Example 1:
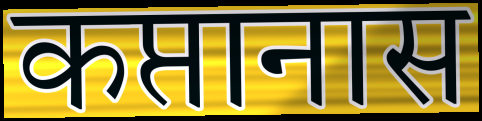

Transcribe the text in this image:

कप्तानास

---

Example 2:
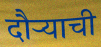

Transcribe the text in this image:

दौर्‍याची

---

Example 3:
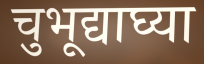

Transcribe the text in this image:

चुभूद्याघ्या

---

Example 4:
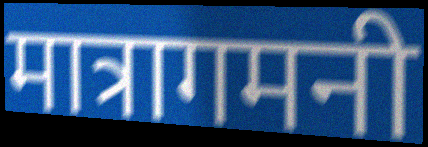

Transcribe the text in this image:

मात्रागमनी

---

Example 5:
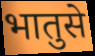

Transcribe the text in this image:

भातुसे